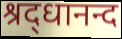
श्रद्धानन्द